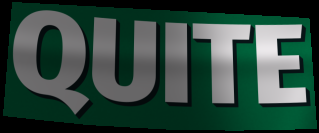
QUITE